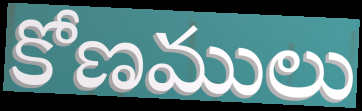
కోణములు